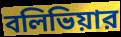
বলিভিয়ার